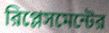
রিপ্লেসমেন্টের